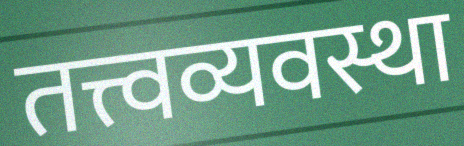
तत्त्वव्यवस्था